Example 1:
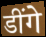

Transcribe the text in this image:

डींगे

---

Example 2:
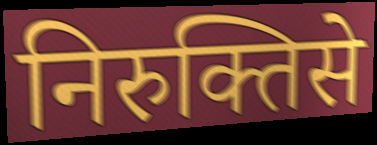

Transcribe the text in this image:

निरुक्तिसे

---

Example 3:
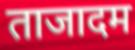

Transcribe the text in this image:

ताजादम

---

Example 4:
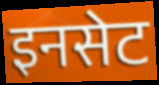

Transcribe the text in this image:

इनसेट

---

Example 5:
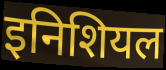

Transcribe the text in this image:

इनिशियल